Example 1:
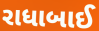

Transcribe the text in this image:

રાધાબાઈ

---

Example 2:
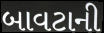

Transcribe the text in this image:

બાવટાની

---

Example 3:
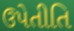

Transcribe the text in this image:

ઉપેતીતિ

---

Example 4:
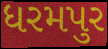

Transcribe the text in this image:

ધરમપુર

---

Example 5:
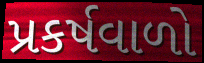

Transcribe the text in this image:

પ્રકર્ષવાળો